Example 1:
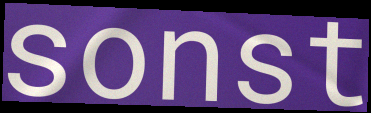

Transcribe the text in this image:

sonst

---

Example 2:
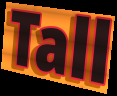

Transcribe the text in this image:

Tall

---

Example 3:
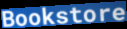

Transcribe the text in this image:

Bookstore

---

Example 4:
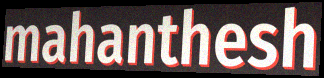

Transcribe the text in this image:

mahanthesh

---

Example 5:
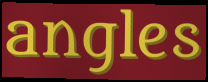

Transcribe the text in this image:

angles